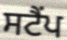
ਸਟੈਂਪ